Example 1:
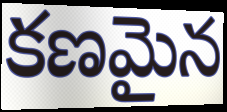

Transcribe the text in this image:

కణమైన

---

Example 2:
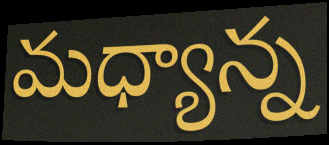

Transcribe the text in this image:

మధ్యాన్న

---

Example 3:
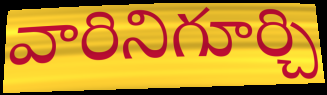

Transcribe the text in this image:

వారినిగూర్చి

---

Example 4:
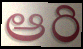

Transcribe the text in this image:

ఆరి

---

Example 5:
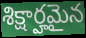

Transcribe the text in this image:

శిక్షార్హమైన